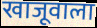
खाजूवाला